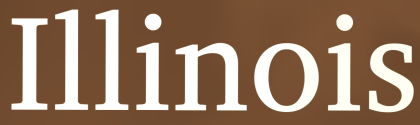
Illinois